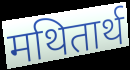
मथितार्थ